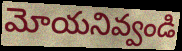
మోయనివ్వండి